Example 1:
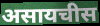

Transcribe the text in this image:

असायचीस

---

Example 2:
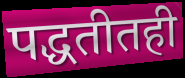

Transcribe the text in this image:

पद्धतीतही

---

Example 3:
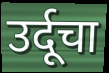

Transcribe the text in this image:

उर्दूचा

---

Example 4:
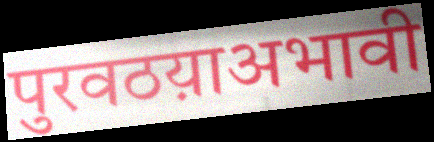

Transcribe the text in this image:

पुरवठय़ाअभावी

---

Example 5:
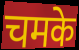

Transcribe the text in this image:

चमके